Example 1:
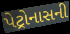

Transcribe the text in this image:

પેટ્રોનાસની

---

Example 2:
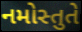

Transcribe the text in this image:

નમોસ્તુતે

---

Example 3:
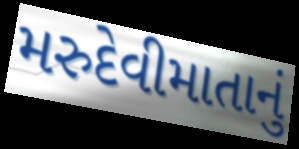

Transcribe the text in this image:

મરુદેવીમાતાનું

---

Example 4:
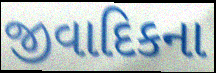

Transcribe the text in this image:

જીવાદિકના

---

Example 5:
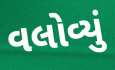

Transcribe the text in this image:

વલોવ્યું